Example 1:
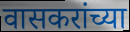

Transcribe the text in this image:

वासकरांच्या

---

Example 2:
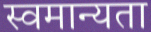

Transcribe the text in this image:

स्वमान्यता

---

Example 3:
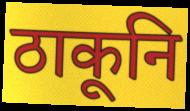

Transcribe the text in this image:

ठाकूनि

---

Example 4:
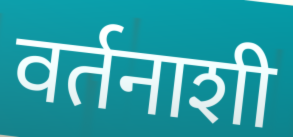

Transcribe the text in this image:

वर्तनाशी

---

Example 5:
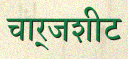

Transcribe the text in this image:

चार्जशीट